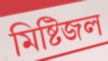
মিষ্টিজল